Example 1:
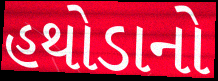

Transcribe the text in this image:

હથોડાનો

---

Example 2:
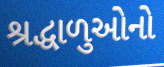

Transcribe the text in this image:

શ્રદ્ધાળુઓનો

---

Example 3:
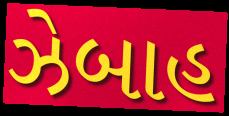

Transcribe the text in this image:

ઝેબાહ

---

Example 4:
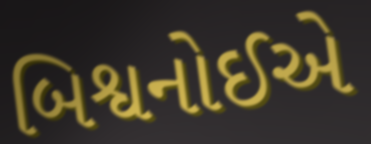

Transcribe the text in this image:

બિશ્વનોઈએ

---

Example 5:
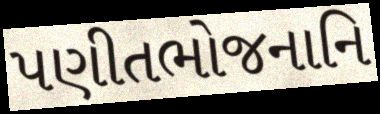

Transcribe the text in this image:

પણીતભોજનાનિ